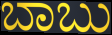
ಬಾಬು